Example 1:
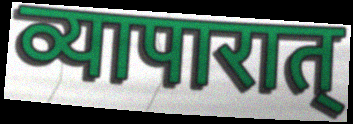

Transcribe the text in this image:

व्यापारात्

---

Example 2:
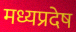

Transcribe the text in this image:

मध्यप्रदेष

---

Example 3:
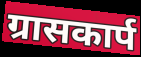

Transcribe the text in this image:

ग्रासकार्प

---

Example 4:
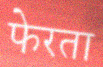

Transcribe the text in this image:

फेरता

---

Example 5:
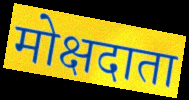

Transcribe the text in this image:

मोक्षदाता